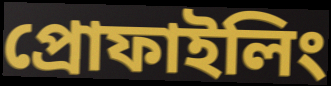
প্রোফাইলিং